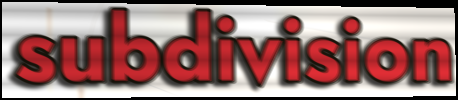
subdivision